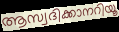
ആസ്വദിക്കാനറിയൂ